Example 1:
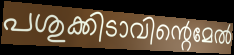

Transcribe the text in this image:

പശുക്കിടാവിന്റെമേൽ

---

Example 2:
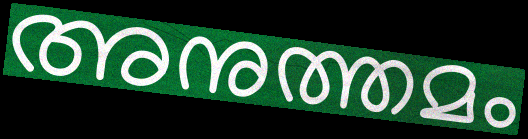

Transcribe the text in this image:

അനുത്തമം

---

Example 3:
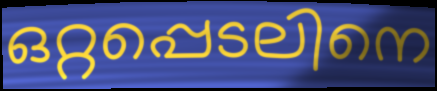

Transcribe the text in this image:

ഒറ്റപ്പെടലിനെ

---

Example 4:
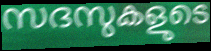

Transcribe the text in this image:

സദസുകളുടെ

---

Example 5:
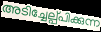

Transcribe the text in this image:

അടിച്ചേല്പ്പിക്കുന്ന